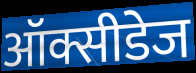
ऑक्सीडेज